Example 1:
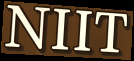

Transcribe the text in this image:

NIIT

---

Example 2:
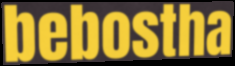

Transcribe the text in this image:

bebostha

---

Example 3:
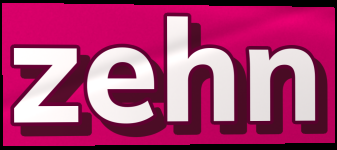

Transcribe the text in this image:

zehn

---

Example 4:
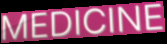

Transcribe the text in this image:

MEDICINE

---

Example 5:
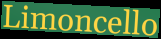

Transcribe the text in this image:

Limoncello